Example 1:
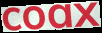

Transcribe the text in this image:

coax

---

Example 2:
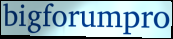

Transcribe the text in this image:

bigforumpro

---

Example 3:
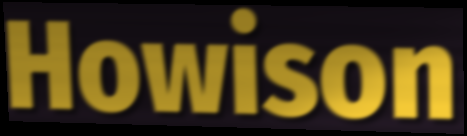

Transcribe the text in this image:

Howison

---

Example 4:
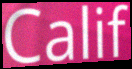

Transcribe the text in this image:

Calif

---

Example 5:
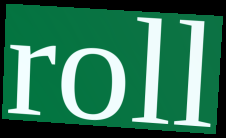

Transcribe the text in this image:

roll